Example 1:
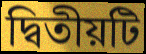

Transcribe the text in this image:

দ্বিতীয়টি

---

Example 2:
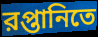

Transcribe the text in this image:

রপ্তানিতে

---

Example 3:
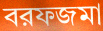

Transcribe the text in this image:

বরফজমা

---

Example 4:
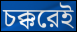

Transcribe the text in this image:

চক্করেই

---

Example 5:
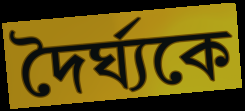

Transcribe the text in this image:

দৈর্ঘ্যকে